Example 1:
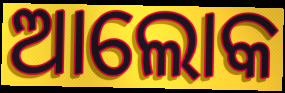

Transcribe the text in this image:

ଆଲୋକ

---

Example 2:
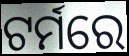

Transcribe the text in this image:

ଟର୍ମରେ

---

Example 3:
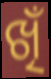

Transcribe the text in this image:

ଖିଁ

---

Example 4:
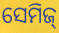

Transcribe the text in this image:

ସେମିଜ୍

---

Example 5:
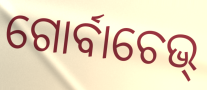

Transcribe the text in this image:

ଗୋର୍ବାଚେଭ୍